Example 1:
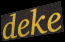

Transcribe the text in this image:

deke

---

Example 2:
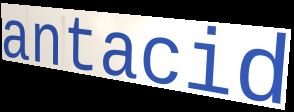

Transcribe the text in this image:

antacid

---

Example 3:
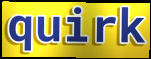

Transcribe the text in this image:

quirk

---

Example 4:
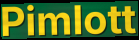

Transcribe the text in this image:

Pimlott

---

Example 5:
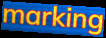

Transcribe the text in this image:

marking